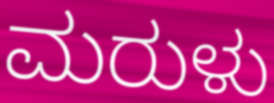
ಮರುಳು